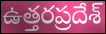
ఉత్తరప్రదేశ్